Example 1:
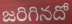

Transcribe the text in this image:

జరిగినదో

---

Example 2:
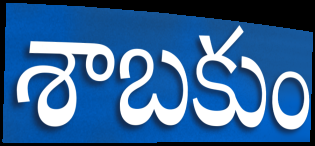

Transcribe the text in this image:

శాబకుం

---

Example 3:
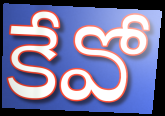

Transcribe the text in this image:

కేవో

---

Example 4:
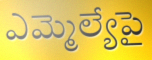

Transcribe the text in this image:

ఎమ్మెల్యేపై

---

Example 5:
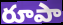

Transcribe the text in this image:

రూపా